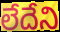
లేదేని